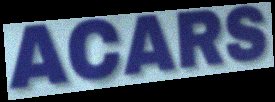
ACARS